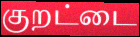
குறட்டை